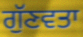
ਗੁੱਣਵਤਾ